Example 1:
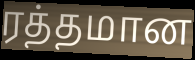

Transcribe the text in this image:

ரத்தமான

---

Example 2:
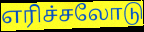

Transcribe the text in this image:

எரிச்சலோடு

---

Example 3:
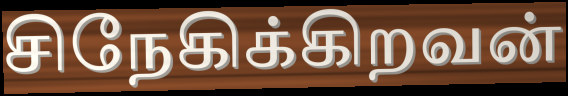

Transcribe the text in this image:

சிநேகிக்கிறவன்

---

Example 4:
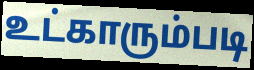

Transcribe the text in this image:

உட்காரும்படி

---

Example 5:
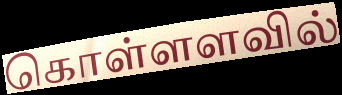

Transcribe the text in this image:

கொள்ளளவில்